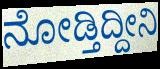
ನೋಡ್ತಿದ್ದೀನಿ